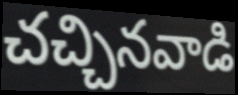
చచ్చినవాడి